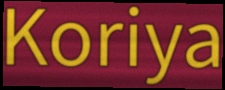
Koriya